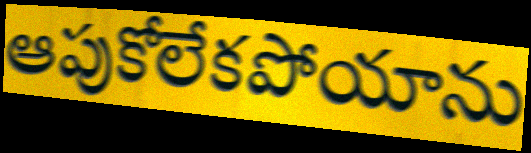
ఆపుకోలేకపోయాను